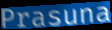
Prasuna